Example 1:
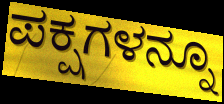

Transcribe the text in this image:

ಪಕ್ಷಗಳನ್ನೂ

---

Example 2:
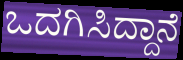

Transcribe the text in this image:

ಒದಗಿಸಿದ್ದಾನೆ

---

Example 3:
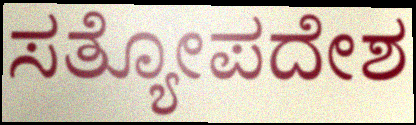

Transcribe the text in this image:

ಸತ್ಯೋಪದೇಶ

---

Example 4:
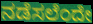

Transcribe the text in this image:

ನಡೆಸಲೆಂದೇ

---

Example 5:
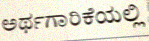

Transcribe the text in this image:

ಅರ್ಥಗಾರಿಕೆಯಲ್ಲಿ